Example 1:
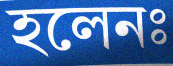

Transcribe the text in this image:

হলেনঃ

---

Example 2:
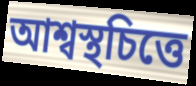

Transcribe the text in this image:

আশ্বস্থচিত্তে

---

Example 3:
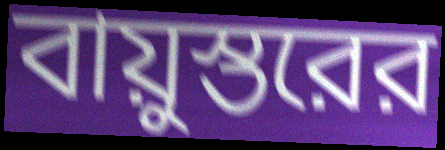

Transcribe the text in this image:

বায়ুস্তরের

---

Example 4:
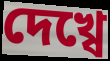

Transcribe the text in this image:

দেখ্বে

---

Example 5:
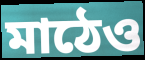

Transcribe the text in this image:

মাঠেও